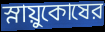
স্নায়ুকোষের